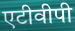
एटीवीपी